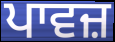
ਪਾਵਜ਼